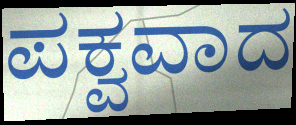
ಪಕ್ವವಾದ